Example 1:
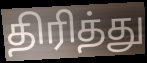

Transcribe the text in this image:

திரித்து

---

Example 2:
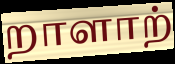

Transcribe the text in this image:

றாளாற்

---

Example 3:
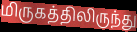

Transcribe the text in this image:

மிருகத்திலிருந்து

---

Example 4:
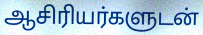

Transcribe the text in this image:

ஆசிரியர்களுடன்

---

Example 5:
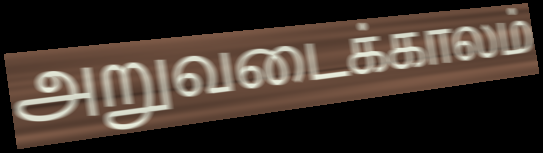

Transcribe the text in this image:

அறுவடைக்காலம்